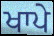
ਖਾਪੇ